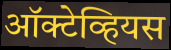
ऑक्टेव्हियस